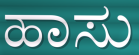
ಹಾಸು